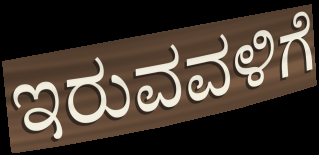
ಇರುವವಳಿಗೆ